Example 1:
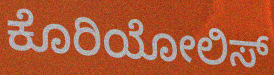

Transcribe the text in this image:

ಕೊರಿಯೋಲಿಸ್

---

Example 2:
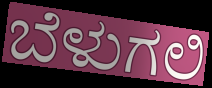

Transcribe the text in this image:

ಬೆಳುಗಲಿ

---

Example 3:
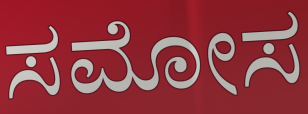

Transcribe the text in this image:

ಸಮೋಸ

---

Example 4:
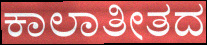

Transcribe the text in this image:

ಕಾಲಾತೀತದ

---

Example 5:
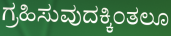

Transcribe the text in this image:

ಗ್ರಹಿಸುವುದಕ್ಕಿಂತಲೂ